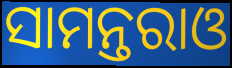
ସାମନ୍ତରାଓ